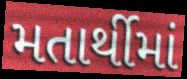
મતાર્થીમાં